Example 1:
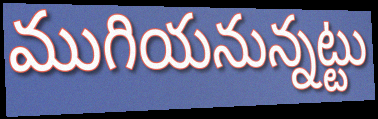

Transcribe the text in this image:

ముగియనున్నట్టు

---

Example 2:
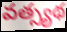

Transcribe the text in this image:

వత్స్యథ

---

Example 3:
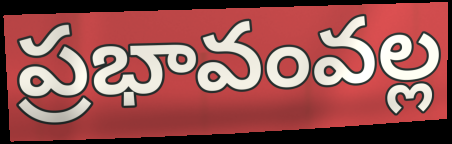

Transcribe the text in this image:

ప్రభావంవల్ల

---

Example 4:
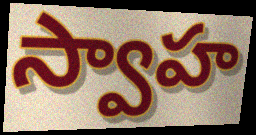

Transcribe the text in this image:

స్వాహ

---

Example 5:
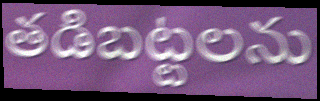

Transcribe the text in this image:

తడిబట్టలను